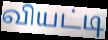
வியட்டி